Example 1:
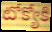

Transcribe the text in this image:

టోక్యోకి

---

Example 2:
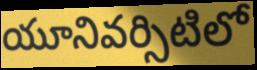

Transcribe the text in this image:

యూనివర్సిటిలో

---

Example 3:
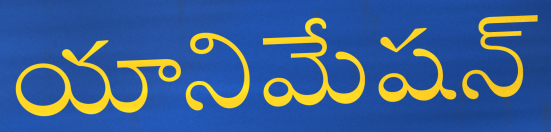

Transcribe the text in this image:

యానిమేషన్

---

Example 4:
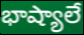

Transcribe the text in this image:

భాష్యాలే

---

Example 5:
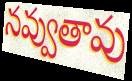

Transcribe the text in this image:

నవ్వుతావు